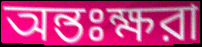
অন্তঃক্ষরা